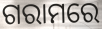
ଗରାମରେ